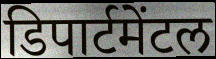
डिपार्टमेंटल